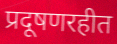
प्रदूषणरहीत